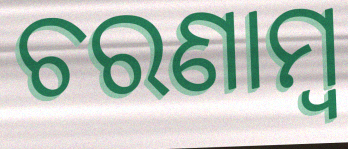
ଚରଣାମ୍ବ